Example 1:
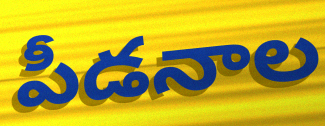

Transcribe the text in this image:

పీడనాల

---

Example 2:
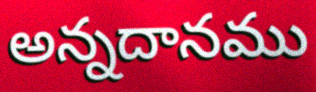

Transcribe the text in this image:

అన్నదానము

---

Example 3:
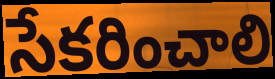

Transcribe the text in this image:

సేకరించాలి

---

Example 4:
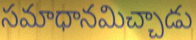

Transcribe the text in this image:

సమాధానమిచ్చాడు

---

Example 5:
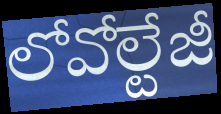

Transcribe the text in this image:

లోవోల్టేజీ